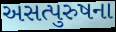
અસત્પુરુષના